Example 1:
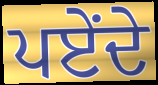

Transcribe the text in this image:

ਪਏਂਦੇ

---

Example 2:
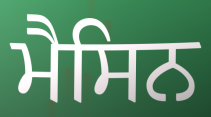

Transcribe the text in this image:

ਮੈਸਿਨ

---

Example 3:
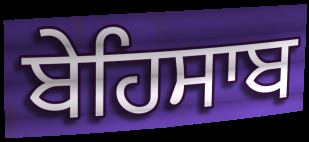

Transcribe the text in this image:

ਬੇਹਿਸਾਬ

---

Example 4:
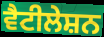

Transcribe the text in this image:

ਵੈਟੀਲੇਸ਼ਨ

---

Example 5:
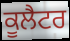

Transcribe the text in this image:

ਕੂਲੈਟਰ